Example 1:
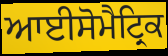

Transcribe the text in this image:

ਆਈਸੋਮੈਟ੍ਰਿਕ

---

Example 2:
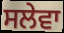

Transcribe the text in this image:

ਸਲੇਵਾ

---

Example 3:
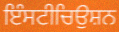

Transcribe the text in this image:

ਇੰਸਟੀਚਿਉਸ਼ਨ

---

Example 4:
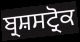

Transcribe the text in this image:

ਬ੍ਰਸ਼ਸਟ੍ਰੋਕ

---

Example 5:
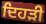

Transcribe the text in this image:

ਦਿਹੜੀ